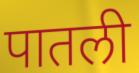
पातली